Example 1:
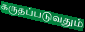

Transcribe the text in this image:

கருதப்படுவதும்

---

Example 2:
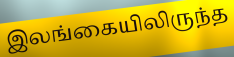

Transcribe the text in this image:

இலங்கையிலிருந்த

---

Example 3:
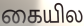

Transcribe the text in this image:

கையில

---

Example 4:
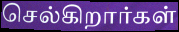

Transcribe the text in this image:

செல்கிறார்கள்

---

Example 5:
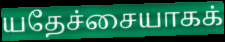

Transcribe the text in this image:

யதேச்சையாகக்